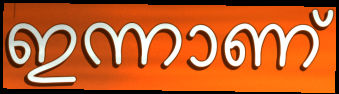
ഇന്നാണ്